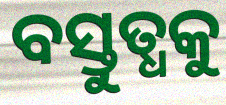
ବସ୍ତୁତ୍ଧକୁ